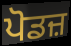
ਪੋਡਜ਼